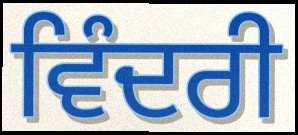
ਵਿੰਦਰੀ